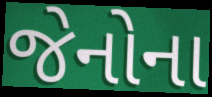
જેનોના